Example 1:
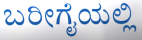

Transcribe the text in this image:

ಬರೀಗೈಯಲ್ಲಿ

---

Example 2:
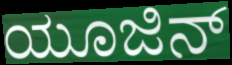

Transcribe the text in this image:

ಯೂಜಿನ್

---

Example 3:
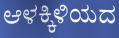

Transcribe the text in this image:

ಆಳಕ್ಕಿಳಿಯದ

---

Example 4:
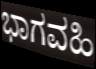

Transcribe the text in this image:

ಭಾಗವಹಿ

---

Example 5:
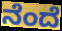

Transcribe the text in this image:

ನೆಂದೆ